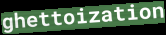
ghettoization